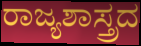
ರಾಜ್ಯಶಾಸ್ತ್ರದ